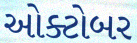
ઓક્ટોબર